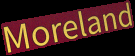
Moreland